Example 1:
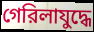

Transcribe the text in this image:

গেরিলাযুদ্ধে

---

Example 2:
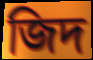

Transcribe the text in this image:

জিদ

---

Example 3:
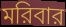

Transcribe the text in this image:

মরিবার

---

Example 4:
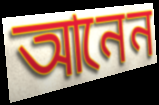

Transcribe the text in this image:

আনেন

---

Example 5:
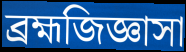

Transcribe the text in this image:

ব্রহ্মজিজ্ঞাসা